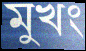
মুখং